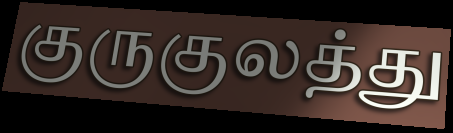
குருகுலத்து